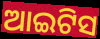
ଆଇଟିସ